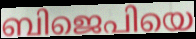
ബിജെപിയെ